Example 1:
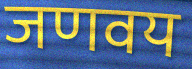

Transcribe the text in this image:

जणवय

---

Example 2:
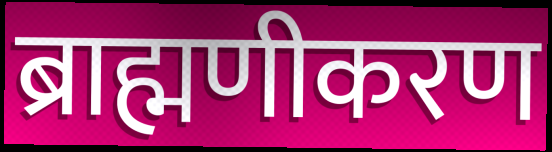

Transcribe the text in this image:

ब्राह्मणीकरण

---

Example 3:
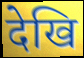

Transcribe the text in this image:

देखि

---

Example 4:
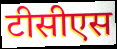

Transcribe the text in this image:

टीसीएस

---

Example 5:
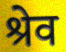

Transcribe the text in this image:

श्रेव